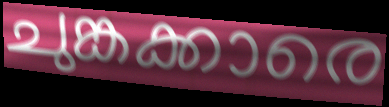
ചുങ്കക്കാരെ